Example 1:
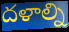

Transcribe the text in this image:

దళాల్ని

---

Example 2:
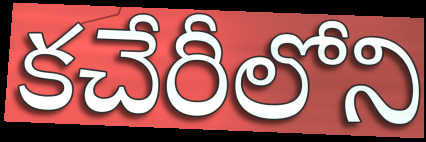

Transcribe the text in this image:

కచేరీలోని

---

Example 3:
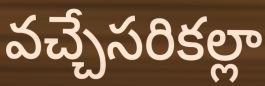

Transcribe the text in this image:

వచ్చేసరికల్లా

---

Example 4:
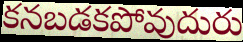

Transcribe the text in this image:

కనబడకపోవుదురు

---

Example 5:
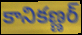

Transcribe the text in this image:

కానికణ్ణర్